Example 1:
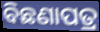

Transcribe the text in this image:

ବିଛଣାପତ୍ର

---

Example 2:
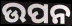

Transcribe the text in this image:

ଉପନ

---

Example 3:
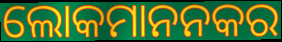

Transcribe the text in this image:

ଲୋକମାନନକର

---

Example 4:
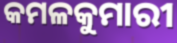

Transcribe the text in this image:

କମଳକୁମାରୀ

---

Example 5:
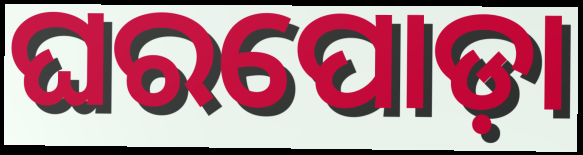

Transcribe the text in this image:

ଘରପୋଡ଼ା